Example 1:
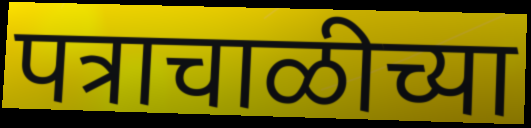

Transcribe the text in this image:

पत्राचाळीच्या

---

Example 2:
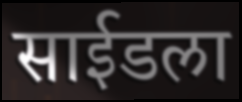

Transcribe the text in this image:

साईडला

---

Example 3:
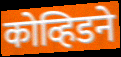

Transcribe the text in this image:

कोव्हिडने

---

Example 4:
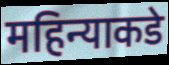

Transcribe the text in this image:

महिन्याकडे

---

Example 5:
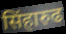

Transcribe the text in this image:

सिंहारुढ